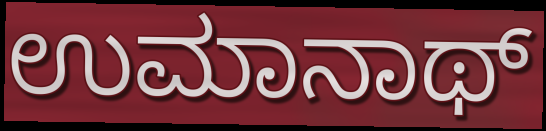
ಉಮಾನಾಥ್